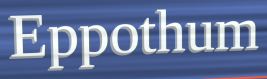
Eppothum